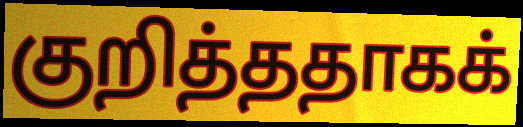
குறித்ததாகக்